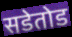
सडेतोड